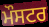
ਮੌਸਟਰ